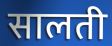
सालती